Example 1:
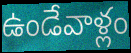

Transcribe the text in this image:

ఉండేవాళ్లం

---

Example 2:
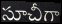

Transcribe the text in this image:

సూచీగా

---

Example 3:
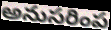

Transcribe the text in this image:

అనుసరింప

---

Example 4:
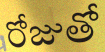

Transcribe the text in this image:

రోజుతో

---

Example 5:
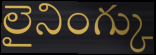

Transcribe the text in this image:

లైనింగ్కు